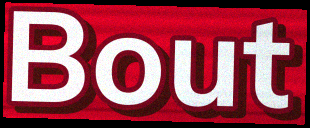
Bout